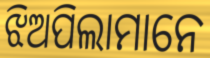
ଝିଅପିଲାମାନେ